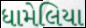
ધામેલિયા